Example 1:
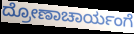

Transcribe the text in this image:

ದ್ರೋಣಾಚಾರ್ಯಂಗೆ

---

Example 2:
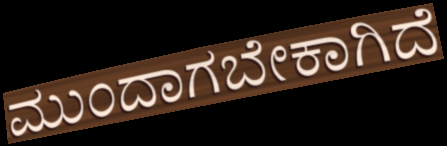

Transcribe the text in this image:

ಮುಂದಾಗಬೇಕಾಗಿದೆ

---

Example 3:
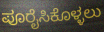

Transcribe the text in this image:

ಪೂರೈಸಿಕೊಳ್ಳಲು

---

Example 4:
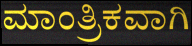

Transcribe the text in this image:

ಮಾಂತ್ರಿಕವಾಗಿ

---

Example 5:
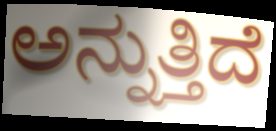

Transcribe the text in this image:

ಅನ್ನುತ್ತಿದೆ